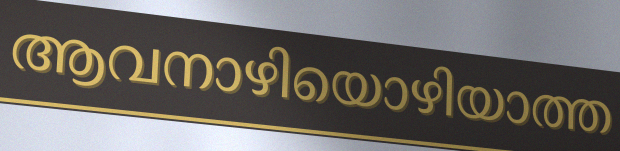
ആവനാഴിയൊഴിയാത്ത